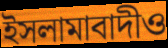
ইসলামাবাদীও